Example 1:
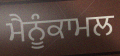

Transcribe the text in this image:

ਮੈਨੂੰਕਾਮਲ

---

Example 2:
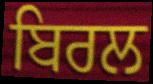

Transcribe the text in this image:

ਬਿਰਲ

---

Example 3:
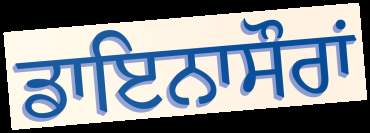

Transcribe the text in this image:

ਡਾਇਨਾਸੌਰਾਂ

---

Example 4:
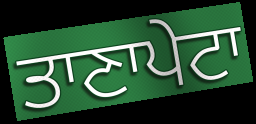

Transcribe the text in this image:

ਤਾਣਾਪੇਟਾ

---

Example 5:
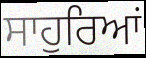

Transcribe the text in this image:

ਸਾਹੁਰਿਆਂ